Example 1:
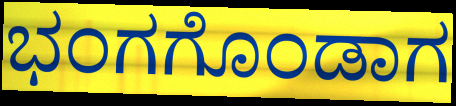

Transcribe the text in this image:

ಭಂಗಗೊಂಡಾಗ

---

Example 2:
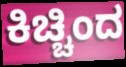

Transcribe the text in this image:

ಕಿಚ್ಚಿಂದ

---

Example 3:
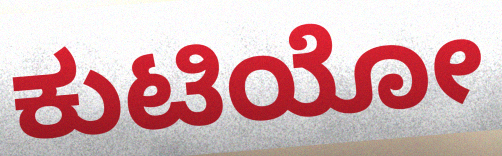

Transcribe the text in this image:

ಕುಟಿಯೋ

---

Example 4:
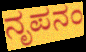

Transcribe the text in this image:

ನೃಪನಂ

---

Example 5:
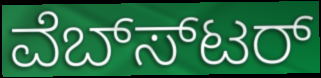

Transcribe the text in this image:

ವೆಬ್ಸ್‍ಟರ್